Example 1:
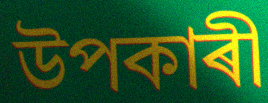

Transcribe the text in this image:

উপকাৰী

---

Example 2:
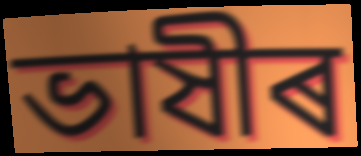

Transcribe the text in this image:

ভাষীৰ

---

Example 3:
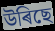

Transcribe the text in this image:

উৰিছে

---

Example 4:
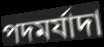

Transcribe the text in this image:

পদমৰ্যাদা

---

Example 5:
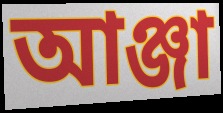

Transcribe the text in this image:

আঞ্জা